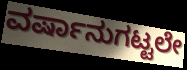
ವರ್ಷಾನುಗಟ್ಟಲೇ